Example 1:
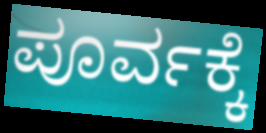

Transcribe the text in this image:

ಪೂರ್ವಕ್ಕೆ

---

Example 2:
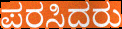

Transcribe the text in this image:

ಪರಸಿದರು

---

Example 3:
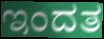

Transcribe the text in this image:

ಇಂದತ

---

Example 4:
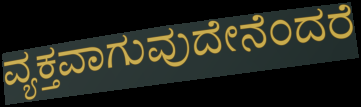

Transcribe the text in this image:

ವ್ಯಕ್ತವಾಗುವುದೇನೆಂದರೆ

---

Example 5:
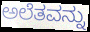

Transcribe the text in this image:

ಅಲೆತವನ್ನು